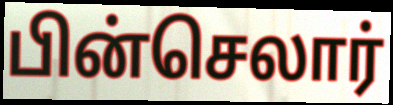
பின்செலார்